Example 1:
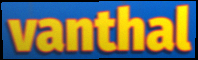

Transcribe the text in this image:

vanthal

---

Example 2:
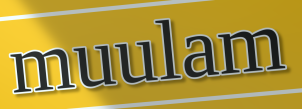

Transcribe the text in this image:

muulam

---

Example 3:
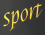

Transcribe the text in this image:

sport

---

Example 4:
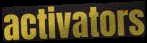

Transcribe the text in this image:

activators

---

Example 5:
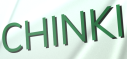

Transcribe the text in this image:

CHINKI